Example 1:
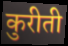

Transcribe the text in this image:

कुरीती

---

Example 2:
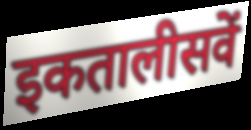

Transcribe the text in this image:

इकतालीसवें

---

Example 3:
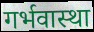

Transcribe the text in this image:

गर्भवास्था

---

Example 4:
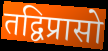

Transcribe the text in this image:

तद्विप्रासो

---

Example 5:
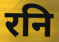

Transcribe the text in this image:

रनि